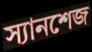
স্যানশেজ